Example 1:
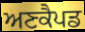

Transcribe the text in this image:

ਅਣਕੈਪਡ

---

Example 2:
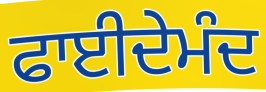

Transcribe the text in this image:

ਫਾਈਦੇਮੰਦ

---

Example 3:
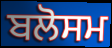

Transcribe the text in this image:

ਬਲੋਸਮ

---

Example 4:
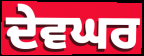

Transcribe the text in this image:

ਦੇਵਘਰ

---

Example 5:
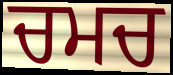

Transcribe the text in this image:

ਚਮਚ